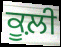
ਕੂਲ਼ੀ